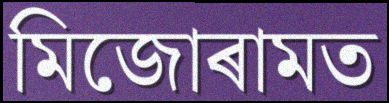
মিজোৰামত